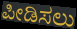
ಪೀಡಿಸಲು